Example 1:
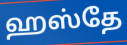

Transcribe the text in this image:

ஹஸ்தே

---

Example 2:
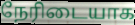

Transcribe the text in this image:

நேரிடையாக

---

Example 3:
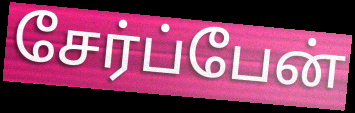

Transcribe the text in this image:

சேர்ப்பேன்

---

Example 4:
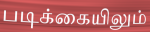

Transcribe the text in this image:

படிக்கையிலும்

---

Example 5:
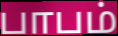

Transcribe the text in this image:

பாபம்